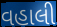
વહાલી